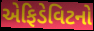
એફિડેવિટનો